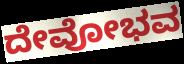
ದೇವೋಭವ